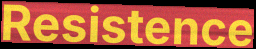
Resistence